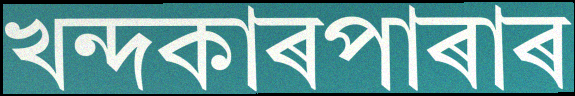
খন্দকাৰপাৰাৰ